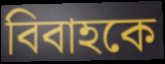
বিবাহকে